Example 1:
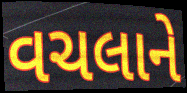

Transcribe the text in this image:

વચલાને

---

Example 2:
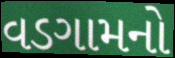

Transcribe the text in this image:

વડગામનો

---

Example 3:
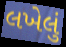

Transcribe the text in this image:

લખેલું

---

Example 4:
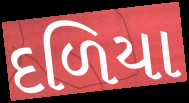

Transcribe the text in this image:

દળિયા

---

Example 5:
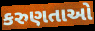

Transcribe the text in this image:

કરુણતાઓ